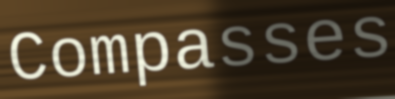
Compasses